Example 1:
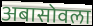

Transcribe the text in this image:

अबासोवला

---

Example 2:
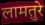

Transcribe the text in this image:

लामतुरे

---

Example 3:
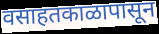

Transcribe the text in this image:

वसाहतकाळापासून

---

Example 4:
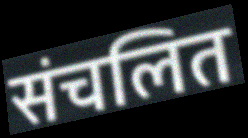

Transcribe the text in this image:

संचलित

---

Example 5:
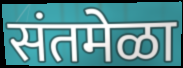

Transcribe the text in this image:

संतमेळा